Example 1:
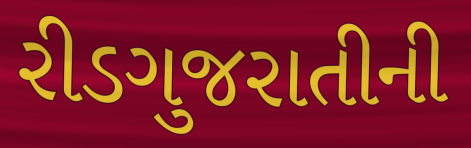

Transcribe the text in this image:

રીડગુજરાતીની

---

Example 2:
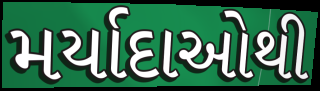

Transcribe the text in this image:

મર્યાદાઓથી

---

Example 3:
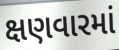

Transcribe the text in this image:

ક્ષણવારમાં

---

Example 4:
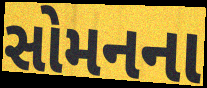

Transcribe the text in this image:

સોમનના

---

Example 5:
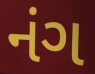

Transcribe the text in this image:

નંગ